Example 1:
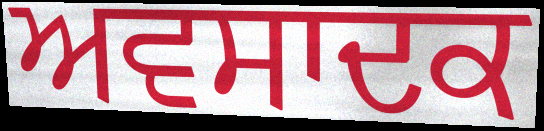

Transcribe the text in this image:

ਅਵਸਾਦਕ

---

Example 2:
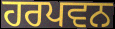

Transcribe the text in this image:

ਹਰਪਵਨ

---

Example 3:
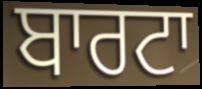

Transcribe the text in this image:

ਬਾਰਟਾ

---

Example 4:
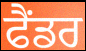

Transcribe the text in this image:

ਫੈਂਡਰ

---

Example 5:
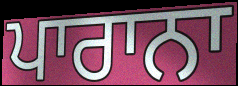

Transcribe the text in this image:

ਪਾਰਾਨਾ